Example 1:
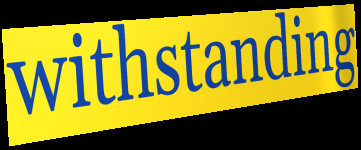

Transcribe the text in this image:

withstanding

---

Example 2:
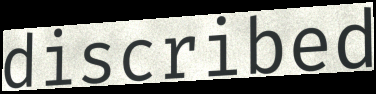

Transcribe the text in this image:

discribed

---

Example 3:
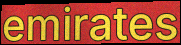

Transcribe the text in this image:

emirates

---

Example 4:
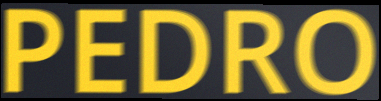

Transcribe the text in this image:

PEDRO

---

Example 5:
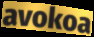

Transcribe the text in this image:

avokoa